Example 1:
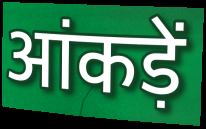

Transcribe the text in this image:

आंकड़ें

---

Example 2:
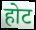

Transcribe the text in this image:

होट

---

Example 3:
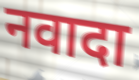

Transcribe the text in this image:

नवादा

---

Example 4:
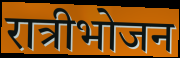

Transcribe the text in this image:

रात्रीभोजन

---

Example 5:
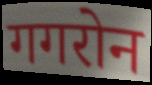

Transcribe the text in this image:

गगरोन